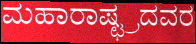
ಮಹಾರಾಷ್ಟ್ರದವರ